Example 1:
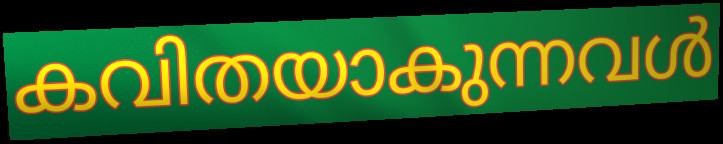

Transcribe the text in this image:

കവിതയാകുന്നവൾ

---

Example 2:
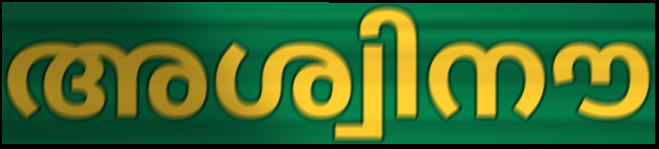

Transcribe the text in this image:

അശ്വിനൗ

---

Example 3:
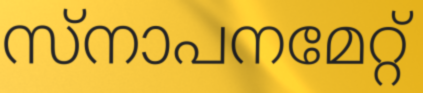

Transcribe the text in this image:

സ്നാപനമേറ്റ്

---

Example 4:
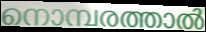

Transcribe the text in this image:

നൊമ്പരത്താൽ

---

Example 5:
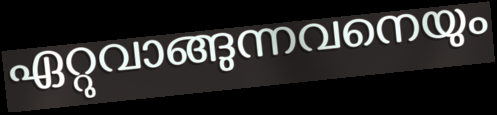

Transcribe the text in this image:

ഏറ്റുവാങ്ങുന്നവനെയും